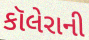
કૉલેરાની